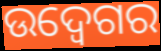
ଉଦ୍ବେଗର